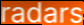
radars